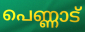
പെണ്ണാട്